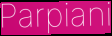
Parpiani